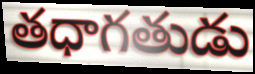
తధాగతుడు